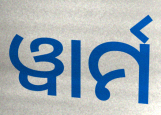
ୱାର୍ମ